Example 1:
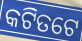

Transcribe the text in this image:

କଟିତଟେ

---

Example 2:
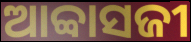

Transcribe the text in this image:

ଆବ୍ବାସଜୀ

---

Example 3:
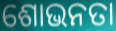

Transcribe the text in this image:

ଶୋଭନତା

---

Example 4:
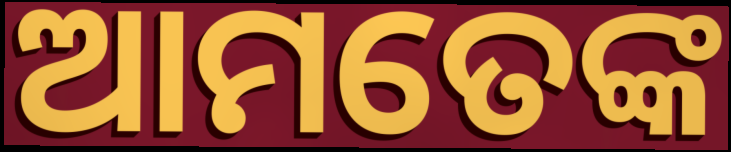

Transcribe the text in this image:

ଆମତେଙ୍କ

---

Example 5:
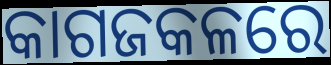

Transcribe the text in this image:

କାଗଜକଳରେ